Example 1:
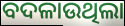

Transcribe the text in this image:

ବଦଳାଉଥିଲା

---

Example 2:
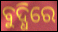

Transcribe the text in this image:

ବୁଦ୍ଧିରେ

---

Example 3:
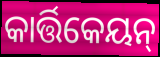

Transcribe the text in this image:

କାର୍ତ୍ତିକେୟନ୍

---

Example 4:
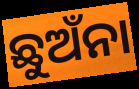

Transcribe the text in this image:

ଛୁଅଁନା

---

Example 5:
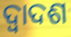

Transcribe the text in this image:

ଦ୍ବାଦଶ